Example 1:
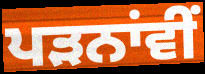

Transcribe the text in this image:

ਪੜਨਾਂਵੀਂ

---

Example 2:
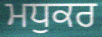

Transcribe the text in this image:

ਮਧੁਕਰ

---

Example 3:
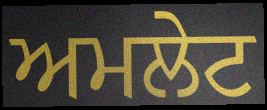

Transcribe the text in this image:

ਅਮਲੇਟ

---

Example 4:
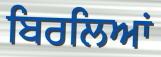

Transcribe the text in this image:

ਬਿਰਲਿਆਂ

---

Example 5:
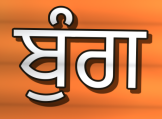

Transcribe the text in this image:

ਬੁੰਗ